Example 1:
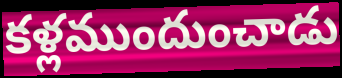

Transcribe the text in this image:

కళ్లముందుంచాడు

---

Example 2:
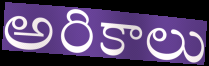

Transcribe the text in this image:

అరికాలు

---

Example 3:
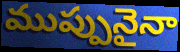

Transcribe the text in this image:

ముప్పునైనా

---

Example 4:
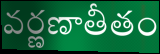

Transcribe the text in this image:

వర్ణణాతీతం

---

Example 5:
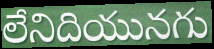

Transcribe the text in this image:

లేనిదియునగు